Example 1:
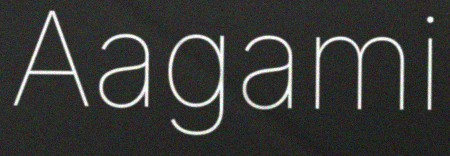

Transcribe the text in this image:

Aagami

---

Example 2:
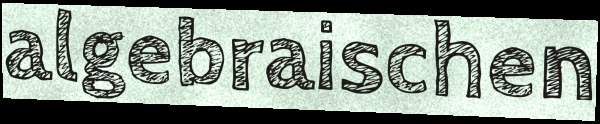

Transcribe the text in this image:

algebraischen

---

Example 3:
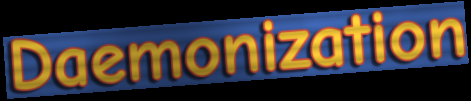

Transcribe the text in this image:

Daemonization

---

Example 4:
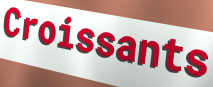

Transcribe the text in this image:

Croissants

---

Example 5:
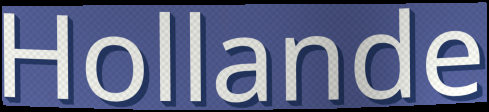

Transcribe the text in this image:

Hollande